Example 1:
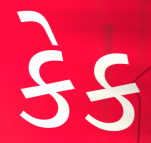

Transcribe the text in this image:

કેક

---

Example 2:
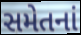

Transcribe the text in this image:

સમેતનાં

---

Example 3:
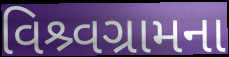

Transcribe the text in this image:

વિશ્ર્વગ્રામના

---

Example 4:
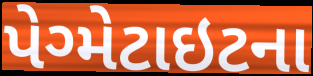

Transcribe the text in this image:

પેગ્મેટાઇટના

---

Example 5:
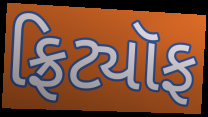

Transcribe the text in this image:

ફ્રિટ્યૉફ